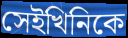
সেইখিনিকে